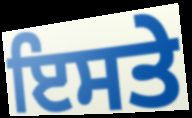
ਇਸਤੇ